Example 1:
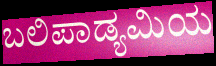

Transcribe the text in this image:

ಬಲಿಪಾಡ್ಯಮಿಯ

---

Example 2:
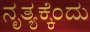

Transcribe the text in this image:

ನೃತ್ಯಕ್ಕೆಂದು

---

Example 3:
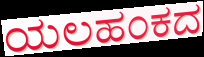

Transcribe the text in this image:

ಯಲಹಂಕದ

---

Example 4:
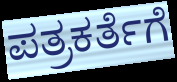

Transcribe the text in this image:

ಪತ್ರಕರ್ತೆಗೆ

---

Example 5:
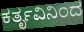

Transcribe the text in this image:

ಕರ್ತೃವಿನಿಂದ